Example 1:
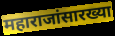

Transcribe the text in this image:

महाराजांसारख्या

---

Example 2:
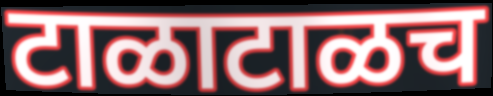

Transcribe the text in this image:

टाळाटाळच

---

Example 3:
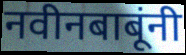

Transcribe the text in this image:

नवीनबाबूंनी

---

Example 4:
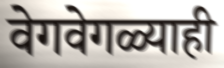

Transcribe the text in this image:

वेगवेगळ्याही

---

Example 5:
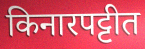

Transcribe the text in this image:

किनारपट्टीत